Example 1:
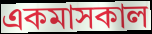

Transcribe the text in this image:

একমাসকাল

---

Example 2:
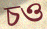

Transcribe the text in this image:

চও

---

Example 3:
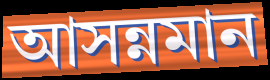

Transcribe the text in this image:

আসন্নমান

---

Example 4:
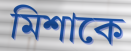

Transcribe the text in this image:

মিশাকে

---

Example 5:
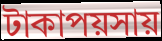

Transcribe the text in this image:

টাকাপয়সায়